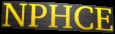
NPHCE